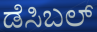
ಡೆಸಿಬಲ್